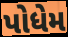
પોધેમ